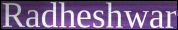
Radheshwar